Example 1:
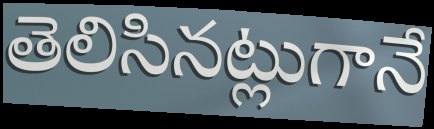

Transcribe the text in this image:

తెలిసినట్లుగానే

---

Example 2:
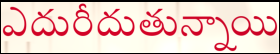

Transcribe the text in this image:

ఎదురీదుతున్నాయి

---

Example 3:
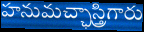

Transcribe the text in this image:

హనుమచ్ఛాస్త్రిగారు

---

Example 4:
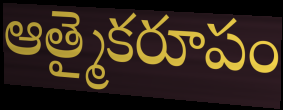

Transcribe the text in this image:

ఆత్మైకరూపం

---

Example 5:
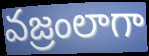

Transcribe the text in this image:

వజ్రంలాగా